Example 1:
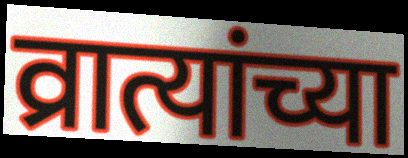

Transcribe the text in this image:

व्रात्यांच्या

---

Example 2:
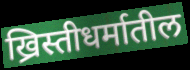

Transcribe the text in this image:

ख्रिस्तीधर्मातील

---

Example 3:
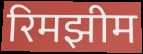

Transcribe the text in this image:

रिमझीम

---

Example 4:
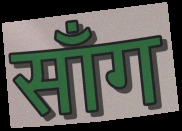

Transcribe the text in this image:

साँग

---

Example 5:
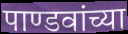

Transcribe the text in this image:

पाण्डवांच्या